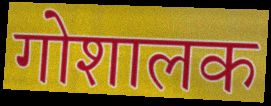
गोशालक